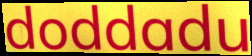
doddadu